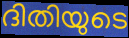
ദിതിയുടെ